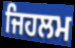
ਜਿਹਲਮ